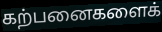
கற்பனைகளைக்